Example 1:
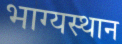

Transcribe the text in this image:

भाग्यस्थान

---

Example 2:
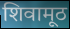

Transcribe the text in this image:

शिवामूठ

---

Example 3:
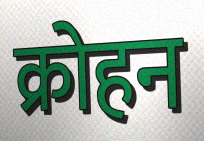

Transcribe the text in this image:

क्रोहन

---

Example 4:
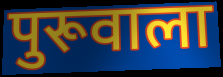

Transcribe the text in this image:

पुरूवाला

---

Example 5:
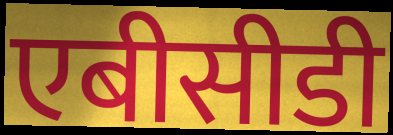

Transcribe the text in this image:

एबीसीडी